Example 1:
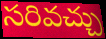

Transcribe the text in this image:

సరివచ్చు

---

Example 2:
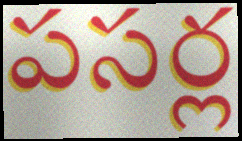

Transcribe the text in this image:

పసర్ల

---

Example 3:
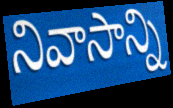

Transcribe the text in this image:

నివాసాన్ని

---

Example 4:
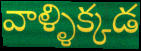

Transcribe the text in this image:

వాళ్ళిక్కడ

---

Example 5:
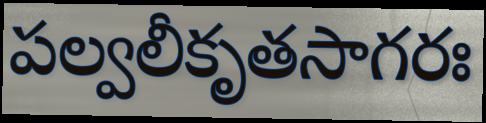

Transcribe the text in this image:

పల్వలీకృతసాగరః